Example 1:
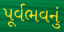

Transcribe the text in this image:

પૂર્વભવનું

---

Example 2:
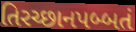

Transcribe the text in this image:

તિરચ્છાનપબ્બતં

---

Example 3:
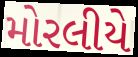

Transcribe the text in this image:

મોરલીયે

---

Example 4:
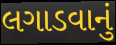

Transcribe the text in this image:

લગાડવાનું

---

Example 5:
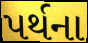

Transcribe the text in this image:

પર્થના